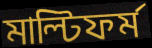
মাল্টিফর্ম